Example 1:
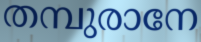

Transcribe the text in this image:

തമ്പുരാനേ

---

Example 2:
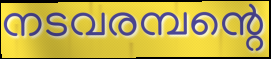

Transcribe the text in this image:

നടവരമ്പന്റെ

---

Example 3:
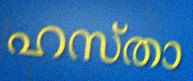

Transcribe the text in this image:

ഹസ്താ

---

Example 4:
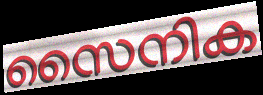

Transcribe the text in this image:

സൈനിക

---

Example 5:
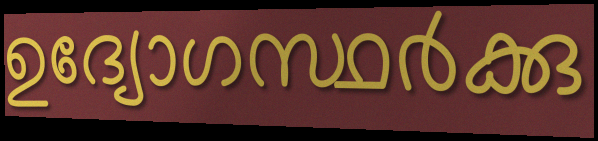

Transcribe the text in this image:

ഉദ്യോഗസ്ഥർക്കു